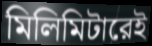
মিলিমিটারেই